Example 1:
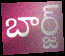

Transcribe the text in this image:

బార్జ్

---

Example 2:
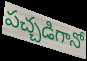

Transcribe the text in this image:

పచ్చడిగానో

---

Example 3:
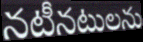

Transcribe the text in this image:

నటీనటులను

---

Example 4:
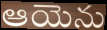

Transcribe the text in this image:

ఆయెను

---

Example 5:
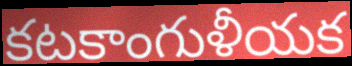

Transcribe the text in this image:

కటకాంగుళీయక